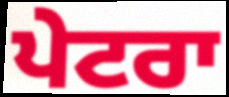
ਪੇਟਰਾ